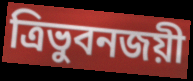
ত্রিভুবনজয়ী